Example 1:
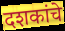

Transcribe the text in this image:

दशकांचे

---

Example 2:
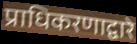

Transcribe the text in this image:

प्राधिकरणाद्वारे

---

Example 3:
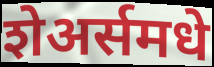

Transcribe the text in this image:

शेअर्समधे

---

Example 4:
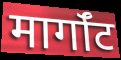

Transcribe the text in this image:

मार्गॉट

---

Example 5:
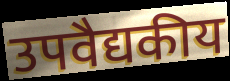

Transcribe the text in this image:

उपवैद्यकीय